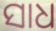
ସାଧ